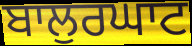
ਬਾਲੁਰਘਾਟ